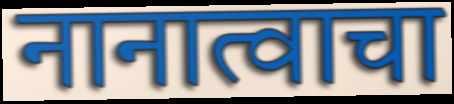
नानात्वाचा